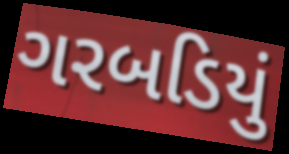
ગરબડિયું